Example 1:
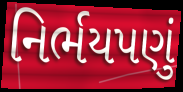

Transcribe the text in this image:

નિર્ભયપણું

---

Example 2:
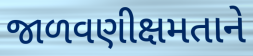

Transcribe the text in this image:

જાળવણીક્ષમતાને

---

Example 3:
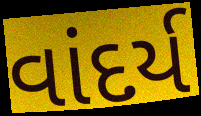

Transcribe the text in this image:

વાંદર્ય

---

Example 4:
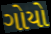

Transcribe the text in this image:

ગોયો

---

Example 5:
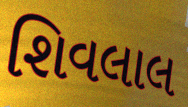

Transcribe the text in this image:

શિવલાલ